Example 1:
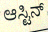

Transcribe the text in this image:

ಆಸ್ಟಿನ್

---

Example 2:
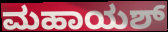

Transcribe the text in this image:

ಮಹಾಯಶ್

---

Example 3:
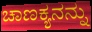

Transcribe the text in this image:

ಚಾಣಕ್ಯನನ್ನು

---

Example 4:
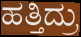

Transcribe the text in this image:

ಹತ್ತಿದ್ರು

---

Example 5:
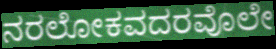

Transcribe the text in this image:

ನರಲೋಕವದರವೊಲೇ